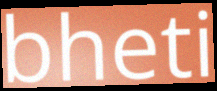
bheti